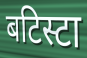
बटिस्टा